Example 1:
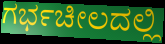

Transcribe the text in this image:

ಗರ್ಭಚೀಲದಲ್ಲಿ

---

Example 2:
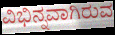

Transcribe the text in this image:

ವಿಭಿನ್ನವಾಗಿರುವ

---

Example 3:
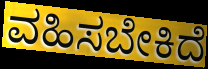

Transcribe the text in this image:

ವಹಿಸಬೇಕಿದೆ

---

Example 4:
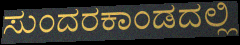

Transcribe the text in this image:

ಸುಂದರಕಾಂಡದಲ್ಲಿ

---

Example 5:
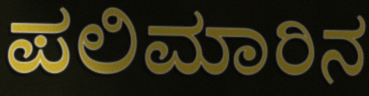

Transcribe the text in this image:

ಪಲಿಮಾರಿನ